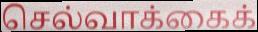
செல்வாக்கைக்